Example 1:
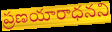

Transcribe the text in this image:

ప్రణయారాధనని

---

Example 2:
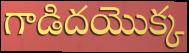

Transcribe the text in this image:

గాడిదయొక్క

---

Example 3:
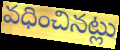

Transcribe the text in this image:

వధించినట్లు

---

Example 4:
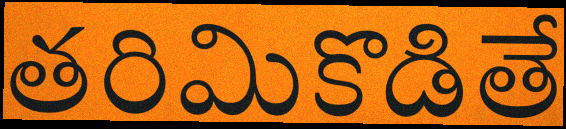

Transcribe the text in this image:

తరిమికొడితే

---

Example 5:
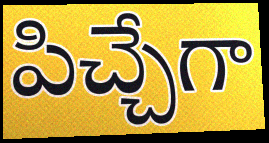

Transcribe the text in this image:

పిచ్చేగా